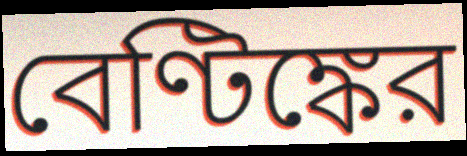
বেণ্টিঙ্কের